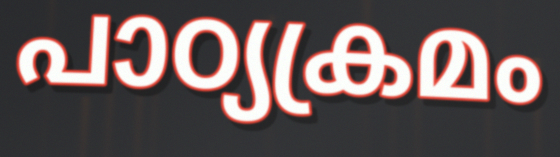
പാഠ്യക്രമം